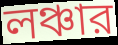
লঞ্চার